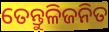
ତେନ୍ତୁଳିଜନିତ